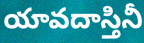
యావదాస్తినీ